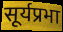
सूर्यप्रभा